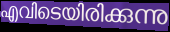
എവിടെയിരിക്കുന്നു